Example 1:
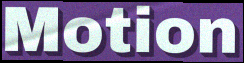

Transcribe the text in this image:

Motion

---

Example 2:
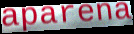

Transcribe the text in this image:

aparena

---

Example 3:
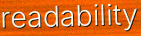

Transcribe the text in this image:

readability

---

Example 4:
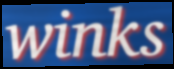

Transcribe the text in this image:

winks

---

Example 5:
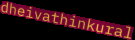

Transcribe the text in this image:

dheivathinkural